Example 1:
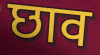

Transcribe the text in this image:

छाव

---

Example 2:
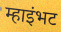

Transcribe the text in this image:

म्हाइंभट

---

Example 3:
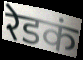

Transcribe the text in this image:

रेडकं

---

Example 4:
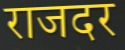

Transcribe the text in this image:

राजदर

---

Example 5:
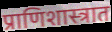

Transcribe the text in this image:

प्राणिशास्त्रात